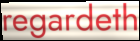
regardeth